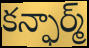
కన్ఫార్మ్